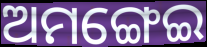
ଅମଙ୍ଗେଇ